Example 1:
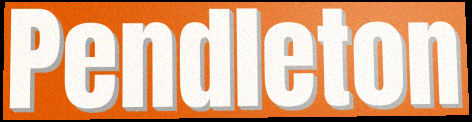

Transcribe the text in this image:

Pendleton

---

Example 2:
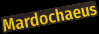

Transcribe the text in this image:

Mardochaeus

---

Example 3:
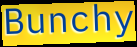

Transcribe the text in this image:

Bunchy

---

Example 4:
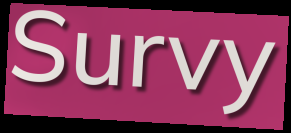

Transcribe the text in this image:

Survy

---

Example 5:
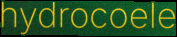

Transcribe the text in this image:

hydrocoele